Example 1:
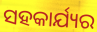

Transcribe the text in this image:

ସହକାର୍ଯ୍ୟର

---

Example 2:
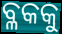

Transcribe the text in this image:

ବ୍ଳକକୁ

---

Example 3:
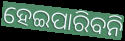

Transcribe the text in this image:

ହେଇପାରିବନି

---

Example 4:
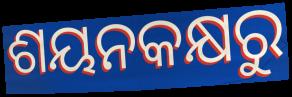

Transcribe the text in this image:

ଶୟନକକ୍ଷରୁ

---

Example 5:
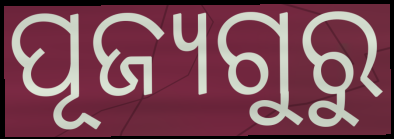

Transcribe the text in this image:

ପୂଜ୍ୟଗୁରୁ